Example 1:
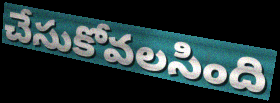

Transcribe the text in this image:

చేసుకోవలసింది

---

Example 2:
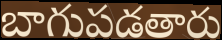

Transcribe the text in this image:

బాగుపడతారు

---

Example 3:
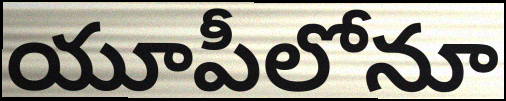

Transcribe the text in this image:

యూపీలోనూ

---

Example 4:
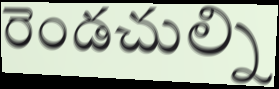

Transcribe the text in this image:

రెండచుల్ని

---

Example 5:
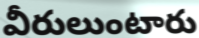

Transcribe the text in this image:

వీరులుంటారు